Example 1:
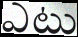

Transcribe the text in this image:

ఎటు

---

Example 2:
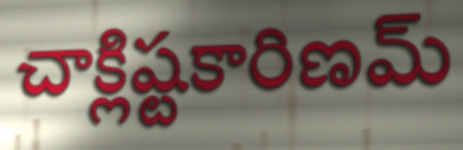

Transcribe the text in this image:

చాక్లిష్టకారిణమ్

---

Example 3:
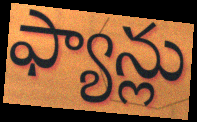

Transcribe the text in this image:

ఫ్యాన్లు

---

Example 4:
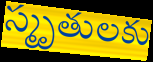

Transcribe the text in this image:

స్మృతులకు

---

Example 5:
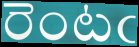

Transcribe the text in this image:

రెంటఁ